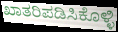
ಖಾತರಿಪಡಿಸಿಕೊಳ್ಳಿ